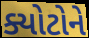
ક્યોટોને